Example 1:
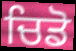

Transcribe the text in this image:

ਚਿਡੋ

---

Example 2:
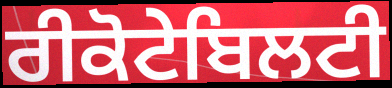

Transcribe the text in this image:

ਰੀਕੋਟੇਬਿਲਟੀ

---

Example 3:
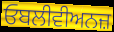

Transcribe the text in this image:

ਓਬਲੀਵੀਅਨਜ਼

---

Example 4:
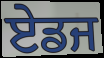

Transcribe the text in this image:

ਏਡਜ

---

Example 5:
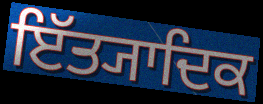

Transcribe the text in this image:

ਇੱਤ੍ਯਾਦਿਕ